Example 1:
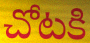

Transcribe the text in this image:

చోటకి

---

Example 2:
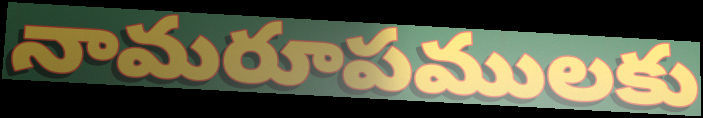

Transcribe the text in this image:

నామరూపములకు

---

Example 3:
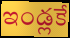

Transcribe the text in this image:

ఇండ్లకే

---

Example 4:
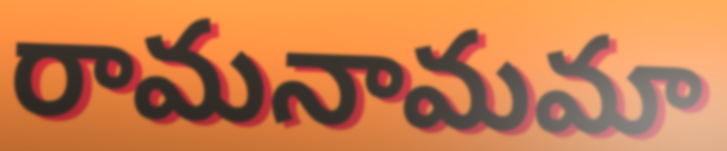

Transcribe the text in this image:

రామనామమా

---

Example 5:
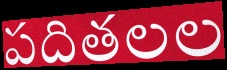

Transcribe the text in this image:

పదితలల